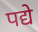
पद्ये